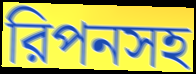
রিপনসহ